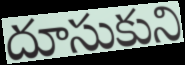
దూసుకుని